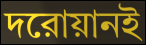
দরোয়ানই